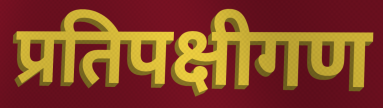
प्रतिपक्षीगण